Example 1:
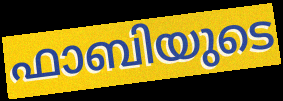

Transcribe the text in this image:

ഫാബിയുടെ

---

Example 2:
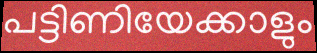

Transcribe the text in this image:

പട്ടിണിയേക്കാളും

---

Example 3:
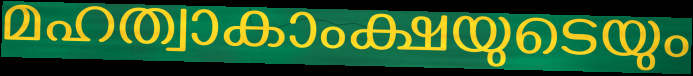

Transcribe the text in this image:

മഹത്വാകാംക്ഷയുടെയും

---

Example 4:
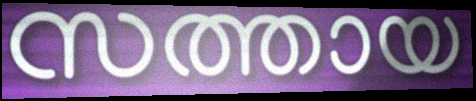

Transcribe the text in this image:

സത്തായ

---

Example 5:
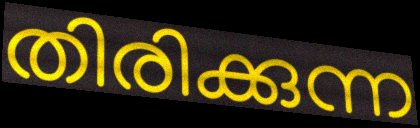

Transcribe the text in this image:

തിരിക്കുന്ന